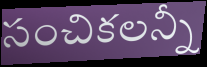
సంచికలన్నీ